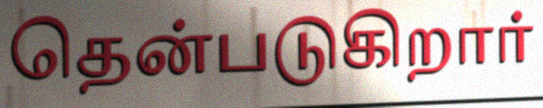
தென்படுகிறார்